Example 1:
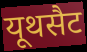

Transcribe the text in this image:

यूथसैट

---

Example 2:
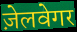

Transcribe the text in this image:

ज़ेलवेगर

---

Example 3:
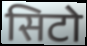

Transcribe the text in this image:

सिटो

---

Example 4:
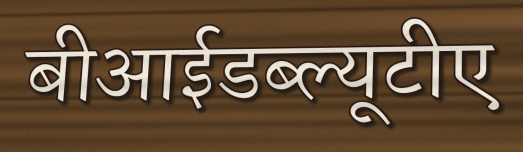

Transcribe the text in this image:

बीआईडब्ल्यूटीए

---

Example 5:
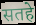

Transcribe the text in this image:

सतहे